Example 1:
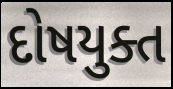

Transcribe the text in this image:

દોષયુક્ત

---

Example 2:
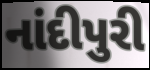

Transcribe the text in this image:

નાંદીપુરી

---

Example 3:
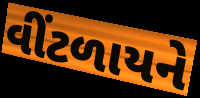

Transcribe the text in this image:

વીંટળાયને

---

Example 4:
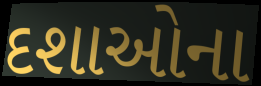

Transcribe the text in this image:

દશાઓના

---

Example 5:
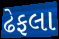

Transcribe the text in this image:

ઢેફલા